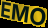
EMO